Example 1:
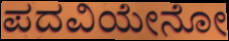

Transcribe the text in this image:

ಪದವಿಯೇನೋ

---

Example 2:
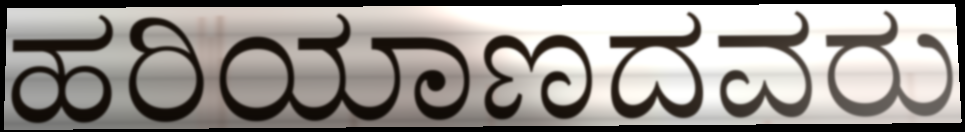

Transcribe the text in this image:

ಹರಿಯಾಣದವರು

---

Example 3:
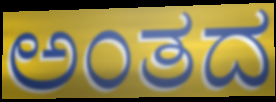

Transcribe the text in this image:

ಅಂತದ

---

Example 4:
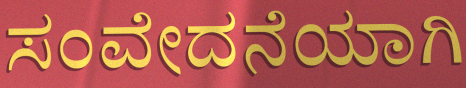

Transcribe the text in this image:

ಸಂವೇದನೆಯಾಗಿ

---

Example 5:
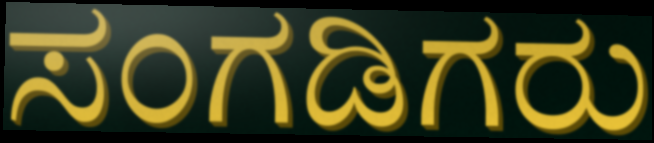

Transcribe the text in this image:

ಸಂಗಡಿಗರು